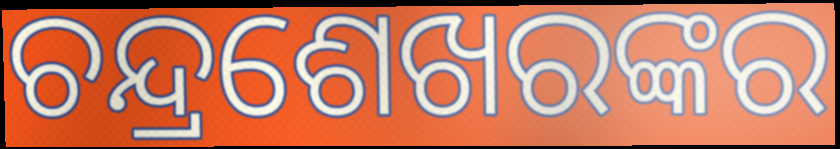
ଚନ୍ଦ୍ରଶେଖରଙ୍କର